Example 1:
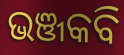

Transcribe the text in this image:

ଭଞ୍ଜକବି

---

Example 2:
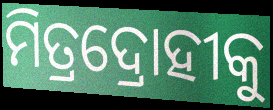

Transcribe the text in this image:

ମିତ୍ରଦ୍ରୋହୀକୁ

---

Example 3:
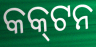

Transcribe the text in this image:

କକ୍‌ଟନ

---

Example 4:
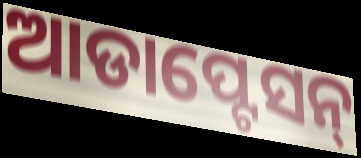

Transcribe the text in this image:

ଆଡାପ୍ଟେସନ୍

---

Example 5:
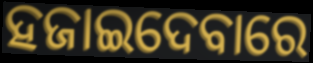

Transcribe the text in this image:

ହଜାଇଦେବାରେ